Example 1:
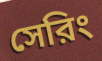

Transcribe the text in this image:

সেরিং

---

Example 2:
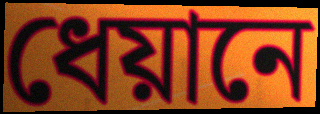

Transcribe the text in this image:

ধেয়ানে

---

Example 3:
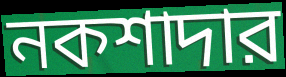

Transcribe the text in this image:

নকশাদার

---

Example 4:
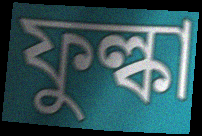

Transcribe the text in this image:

ফুল্কা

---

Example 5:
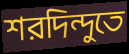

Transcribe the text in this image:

শরদিন্দুতে